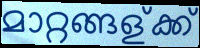
മാറ്റങ്ങള്ക്ക്